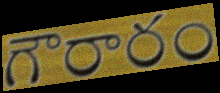
గౌరారం